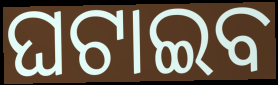
ଘଟାଇବ